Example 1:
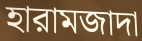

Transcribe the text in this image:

হারামজাদা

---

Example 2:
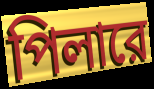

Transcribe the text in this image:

পিলারে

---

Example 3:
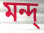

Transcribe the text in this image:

মন্দ্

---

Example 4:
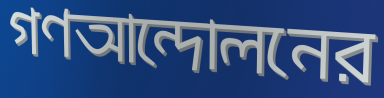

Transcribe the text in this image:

গণআন্দোলনের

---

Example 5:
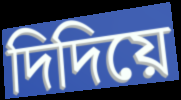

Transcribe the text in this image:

দিদিয়ে